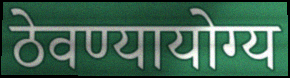
ठेवण्यायोग्य